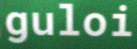
guloi